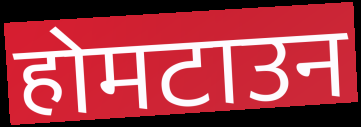
होमटाउन